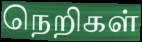
நெறிகள்